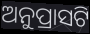
ଅନୁପ୍ରାସଟି